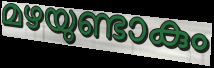
മഴയുണ്ടാകും